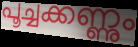
പൂച്ചക്കണ്ണും